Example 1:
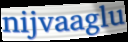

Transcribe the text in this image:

nijvaaglu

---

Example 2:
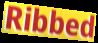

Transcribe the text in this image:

Ribbed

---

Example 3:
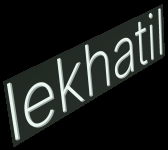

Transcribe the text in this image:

lekhatil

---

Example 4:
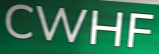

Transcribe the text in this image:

CWHF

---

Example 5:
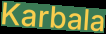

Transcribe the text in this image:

Karbala